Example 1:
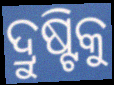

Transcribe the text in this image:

ଦ୍ରୁଷ୍ଟିକୁ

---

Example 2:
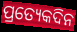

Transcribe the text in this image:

ପ୍ରତ୍ୟେକଦିନ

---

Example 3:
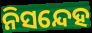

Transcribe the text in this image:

ନିସନ୍ଦେହ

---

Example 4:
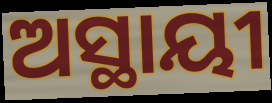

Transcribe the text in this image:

ଅସ୍ଥାୟୀ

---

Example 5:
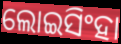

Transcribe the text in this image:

ଲୋଇସିଂହା